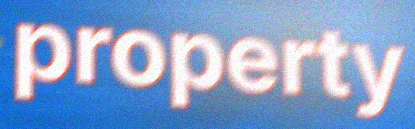
property